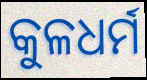
କୁଳଧର୍ମ